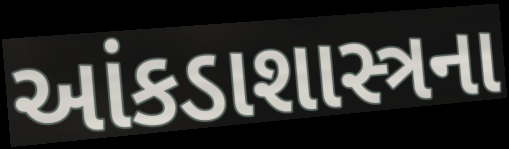
આંકડાશાસ્ત્રના